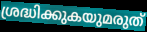
ശ്രദ്ധിക്കുകയുമരുത്